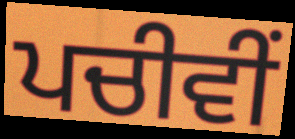
ਪਚੀਵੀਂ